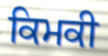
ਕਿਮਕੀ